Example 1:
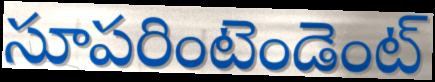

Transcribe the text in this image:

సూపరింటెండెంట్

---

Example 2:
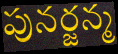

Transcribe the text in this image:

పునర్జన్మ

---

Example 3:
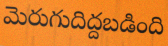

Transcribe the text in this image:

మెరుగుదిద్దబడింది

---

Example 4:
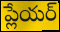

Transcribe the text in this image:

ప్లేయర్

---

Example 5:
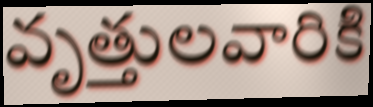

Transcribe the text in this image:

వృత్తులవారికి